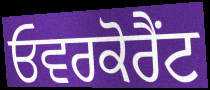
ਓਵਰਕੋਰੈਂਟ